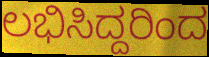
ಲಭಿಸಿದ್ದರಿಂದ